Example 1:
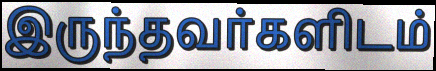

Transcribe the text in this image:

இருந்தவர்களிடம்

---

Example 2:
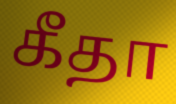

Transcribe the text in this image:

கீதா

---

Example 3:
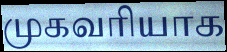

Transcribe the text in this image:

முகவரியாக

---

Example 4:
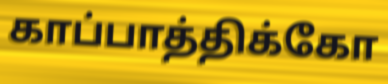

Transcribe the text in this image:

காப்பாத்திக்கோ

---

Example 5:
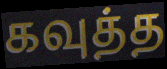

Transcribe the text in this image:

கவுத்த